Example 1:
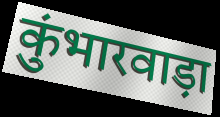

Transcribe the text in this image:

कुंभारवाड़ा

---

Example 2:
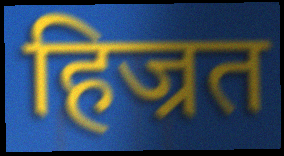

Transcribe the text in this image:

हिज्रत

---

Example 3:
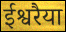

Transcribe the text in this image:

ईश्वरैया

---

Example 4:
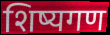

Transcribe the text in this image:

शिष्यगण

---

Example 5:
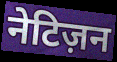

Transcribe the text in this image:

नेटिज़न